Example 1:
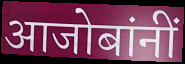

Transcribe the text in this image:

आजोबांनीं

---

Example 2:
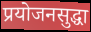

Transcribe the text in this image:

प्रयोजनसुद्धा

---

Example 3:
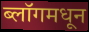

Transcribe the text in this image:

ब्लॉगमधून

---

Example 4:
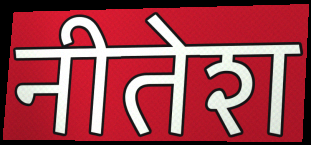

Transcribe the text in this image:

नीतेश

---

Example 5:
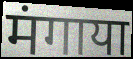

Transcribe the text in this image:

मंगाया